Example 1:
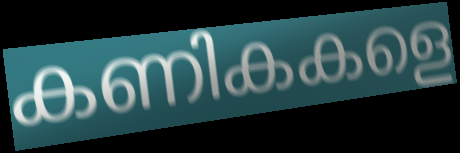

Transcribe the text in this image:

കണികകളെ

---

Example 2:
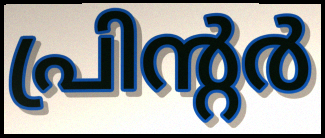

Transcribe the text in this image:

പ്രിന്റർ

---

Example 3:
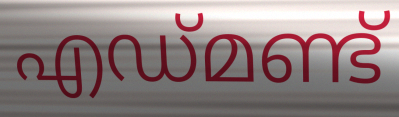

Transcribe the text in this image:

എഡ്മണ്ട്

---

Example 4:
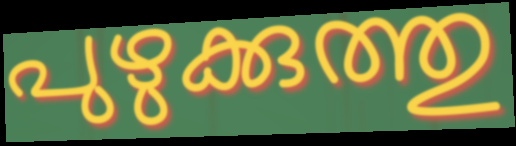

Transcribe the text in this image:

പുഴുക്കുത്തു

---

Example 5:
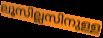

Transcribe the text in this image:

ലൂസില്ലസിനുള്ള